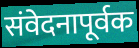
संवेदनापूर्वक